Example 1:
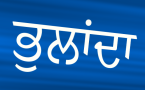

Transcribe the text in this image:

ਭੁਲਾਂਦਾ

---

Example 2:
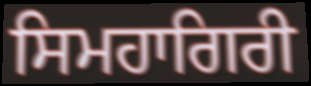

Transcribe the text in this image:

ਸਿਮਹਾਗਿਰੀ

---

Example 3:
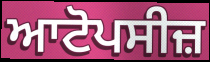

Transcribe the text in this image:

ਆਟੋਪਸੀਜ਼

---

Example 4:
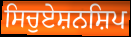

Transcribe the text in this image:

ਸਿਚੁਏਸ਼ਨਸ਼ਿਪ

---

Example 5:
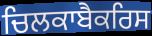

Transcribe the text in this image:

ਚਿਲਕਾਬੈਕਰਿਸ